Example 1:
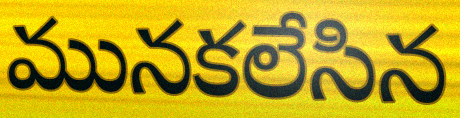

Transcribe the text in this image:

మునకలేసిన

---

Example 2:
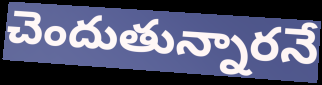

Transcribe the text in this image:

చెందుతున్నారనే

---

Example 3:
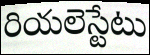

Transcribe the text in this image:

రియలెస్టేటు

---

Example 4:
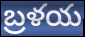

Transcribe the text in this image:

బ్రళయ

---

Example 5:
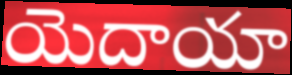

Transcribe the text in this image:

యెదాయా